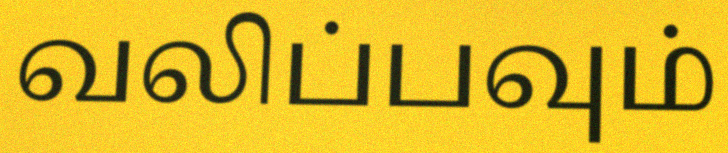
வலிப்பவும்